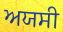
ਅਯਸੀ